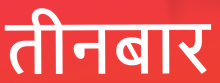
तीनबार